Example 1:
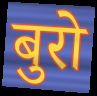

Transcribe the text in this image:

बुरो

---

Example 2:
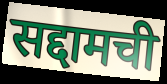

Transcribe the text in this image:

सद्दामची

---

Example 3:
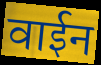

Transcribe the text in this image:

वाईन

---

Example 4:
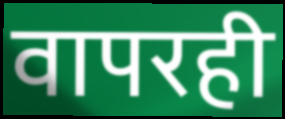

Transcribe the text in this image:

वापरही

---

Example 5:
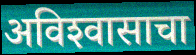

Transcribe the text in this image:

अविश्‍वासाचा